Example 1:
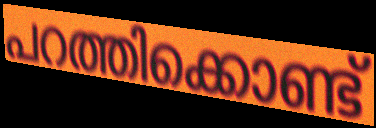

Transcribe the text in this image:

പറത്തിക്കൊണ്ട്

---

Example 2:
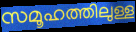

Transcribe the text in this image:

സമൂഹത്തിലുള്ള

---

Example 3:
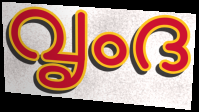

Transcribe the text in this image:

വൃംദ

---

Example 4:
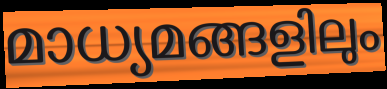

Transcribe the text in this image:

മാധ്യമങ്ങളിലും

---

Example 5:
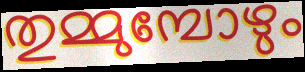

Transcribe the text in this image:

തുമ്മുമ്പോഴും